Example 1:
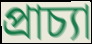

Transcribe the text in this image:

প্ৰাচ্যা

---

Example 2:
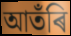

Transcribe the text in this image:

আতঁৰি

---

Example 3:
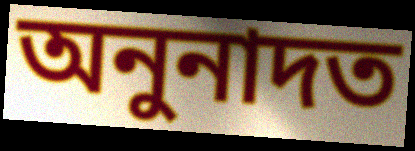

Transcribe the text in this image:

অনুনাদত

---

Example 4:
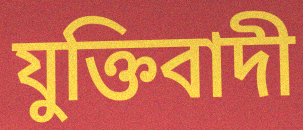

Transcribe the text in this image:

যুক্তিবাদী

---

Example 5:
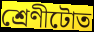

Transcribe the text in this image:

শ্ৰেণীটোত